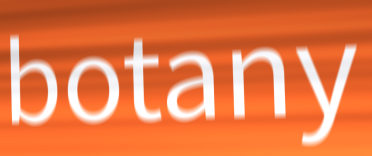
botany